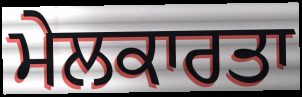
ਮੇਲਕਾਰਤਾ